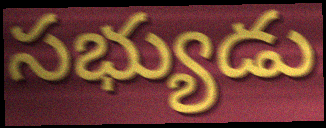
సభ్యుడు